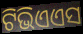
ଟିଭିଏଏସ